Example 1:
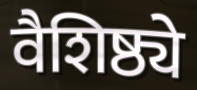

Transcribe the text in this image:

वैशिष्ठ्ये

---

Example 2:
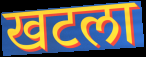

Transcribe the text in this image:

खटला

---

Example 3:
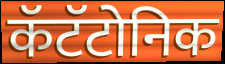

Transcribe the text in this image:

कॅटॅटोनिक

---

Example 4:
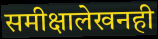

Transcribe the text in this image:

समीक्षालेखनही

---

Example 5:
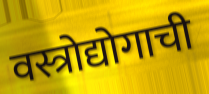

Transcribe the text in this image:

वस्त्रोद्योगाची